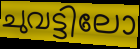
ചുവട്ടിലോ